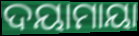
ଦୟାମାୟା